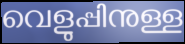
വെളുപ്പിനുള്ള